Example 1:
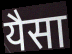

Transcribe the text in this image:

यैसा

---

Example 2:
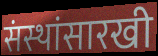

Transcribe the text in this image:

संस्थांसारखी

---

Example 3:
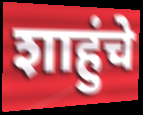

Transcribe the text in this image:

शाहुंचे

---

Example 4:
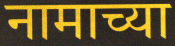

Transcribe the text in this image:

नामाच्या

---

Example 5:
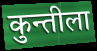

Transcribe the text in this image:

कुन्तीला